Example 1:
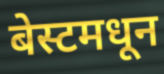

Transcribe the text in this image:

बेस्टमधून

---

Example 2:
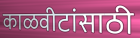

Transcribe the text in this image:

काळवीटांसाठी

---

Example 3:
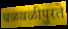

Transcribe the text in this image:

चळवळीपुरते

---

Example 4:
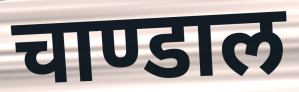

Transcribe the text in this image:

चाण्डाल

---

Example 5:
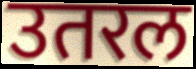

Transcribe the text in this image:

उतरल